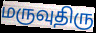
மருவுதிரு